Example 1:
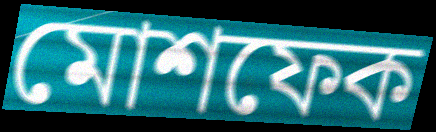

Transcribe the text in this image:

মোশফেক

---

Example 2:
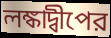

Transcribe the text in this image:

লঙ্কাদ্বীপের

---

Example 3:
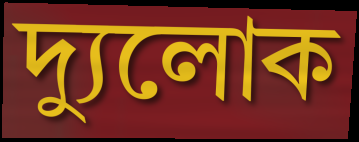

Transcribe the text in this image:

দ্যুলোক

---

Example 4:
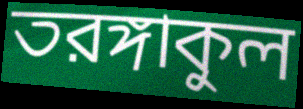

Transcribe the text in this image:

তরঙ্গাকুল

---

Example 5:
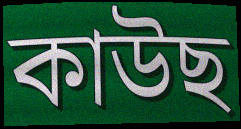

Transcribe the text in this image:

কাউছ